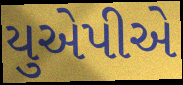
યુએપીએ